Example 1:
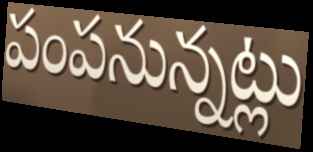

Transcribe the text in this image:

పంపనున్నట్లు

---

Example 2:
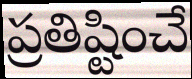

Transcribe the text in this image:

ప్రతిష్టించే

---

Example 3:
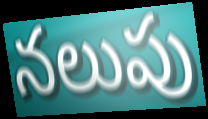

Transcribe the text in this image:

నలుపు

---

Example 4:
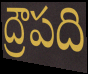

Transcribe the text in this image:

ద్రౌపది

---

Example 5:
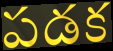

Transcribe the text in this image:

పడక